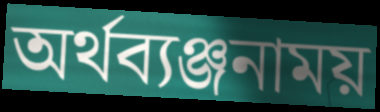
অর্থব্যঞ্জনাময়